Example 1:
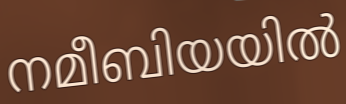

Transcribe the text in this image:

നമീബിയയിൽ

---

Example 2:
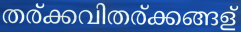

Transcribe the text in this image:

തര്ക്കവിതര്ക്കങ്ങള്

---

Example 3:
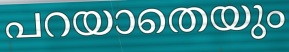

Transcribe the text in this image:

പറയാതെയും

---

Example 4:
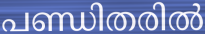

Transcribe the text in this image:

പണ്ഡിതരിൽ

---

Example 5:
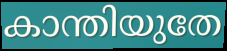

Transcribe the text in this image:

കാന്തിയുതേ